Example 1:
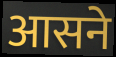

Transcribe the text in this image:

आसने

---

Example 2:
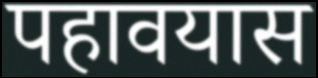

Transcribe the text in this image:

पहावयास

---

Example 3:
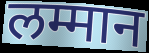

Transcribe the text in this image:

लम्मान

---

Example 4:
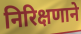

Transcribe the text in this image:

निरिक्षणाने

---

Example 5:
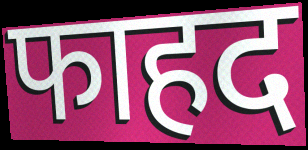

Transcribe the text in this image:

फाहद